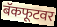
बॅकफूटवर